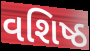
વશિષ્ઠ